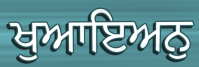
ਖੁਆਇਅਨੁ